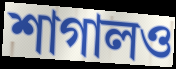
শাগালও